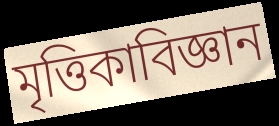
মৃত্তিকাবিজ্ঞান